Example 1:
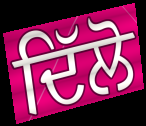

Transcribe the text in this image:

ਦਿੱਲੋ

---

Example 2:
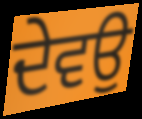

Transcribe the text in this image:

ਦੇਵਉ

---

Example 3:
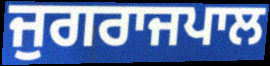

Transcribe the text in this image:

ਜੁਗਰਾਜਪਾਲ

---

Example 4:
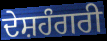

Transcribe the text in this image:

ਦੇਸ਼ਹੰਗਰੀ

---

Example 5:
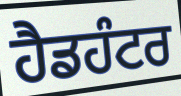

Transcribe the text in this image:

ਹੈਡਹੰਟਰ